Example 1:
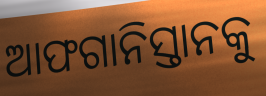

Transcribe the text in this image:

ଆଫଗାନିସ୍ତାନକୁ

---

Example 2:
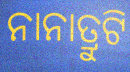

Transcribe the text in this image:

ନାନାତ୍ରୁଟି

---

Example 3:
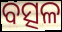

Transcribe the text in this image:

ବତ୍ସଳ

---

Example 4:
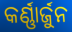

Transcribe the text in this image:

କର୍ଣ୍ଣାର୍ଜୁନ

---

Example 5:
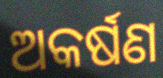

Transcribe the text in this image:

ଅକର୍ଷଣ